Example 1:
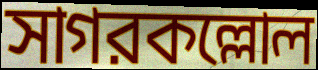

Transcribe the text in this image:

সাগরকল্লোল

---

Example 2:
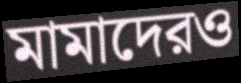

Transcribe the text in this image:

মামাদেরও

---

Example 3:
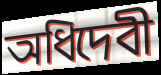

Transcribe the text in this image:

অধিদেবী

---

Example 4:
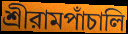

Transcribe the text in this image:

শ্রীরামপাঁচালি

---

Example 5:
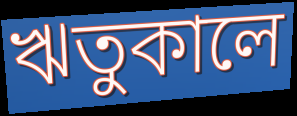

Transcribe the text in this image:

ঋতুকালে